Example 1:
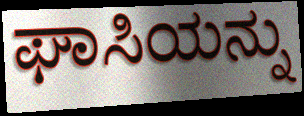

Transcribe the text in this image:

ಘಾಸಿಯನ್ನು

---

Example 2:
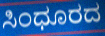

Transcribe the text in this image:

ಸಿಂಧೂರದ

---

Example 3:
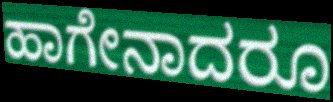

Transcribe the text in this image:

ಹಾಗೇನಾದರೂ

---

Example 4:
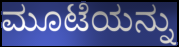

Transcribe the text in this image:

ಮೂಟೆಯನ್ನು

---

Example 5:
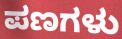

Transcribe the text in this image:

ಪಣಗಳು